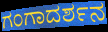
ಗಂಗಾದರ್ಶನ